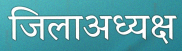
जिलाअध्यक्ष